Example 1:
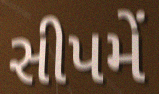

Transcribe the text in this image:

સીપમેં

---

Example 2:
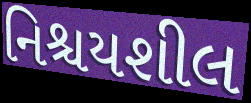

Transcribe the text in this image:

નિશ્ચયશીલ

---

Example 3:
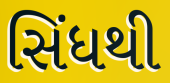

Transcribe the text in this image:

સિંધથી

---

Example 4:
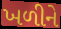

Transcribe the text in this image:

ખળીને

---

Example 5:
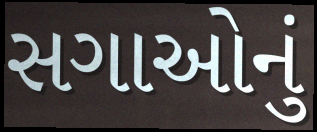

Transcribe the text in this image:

સગાઓનું